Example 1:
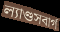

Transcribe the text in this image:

ল্যাণ্ডসবার্গ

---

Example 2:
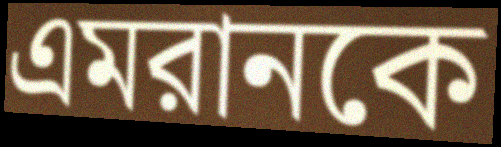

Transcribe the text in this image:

এমরানকে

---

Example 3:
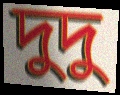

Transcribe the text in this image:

দুদু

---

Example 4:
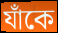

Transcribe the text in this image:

যাঁকে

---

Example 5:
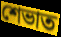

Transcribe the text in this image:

শেভাত